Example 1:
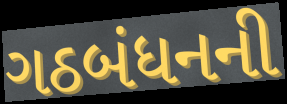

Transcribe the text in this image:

ગઠબંધનની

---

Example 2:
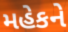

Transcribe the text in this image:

મહેકને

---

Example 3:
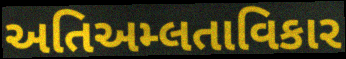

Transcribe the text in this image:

અતિઅમ્લતાવિકાર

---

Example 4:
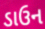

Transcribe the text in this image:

ડાઉન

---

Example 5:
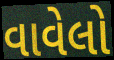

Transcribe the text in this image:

વાવેલો